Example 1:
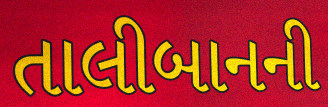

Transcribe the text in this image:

તાલીબાનની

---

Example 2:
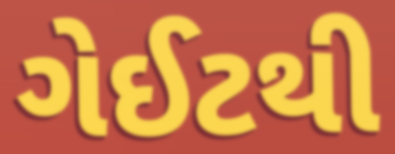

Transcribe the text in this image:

ગેઈટથી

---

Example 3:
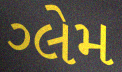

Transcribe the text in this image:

ગ્લેમ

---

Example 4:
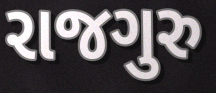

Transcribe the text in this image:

રાજગુરુ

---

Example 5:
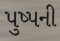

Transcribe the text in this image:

પુષ્પની